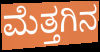
ಮೆತ್ತಗಿನ